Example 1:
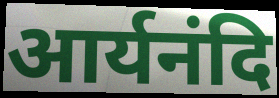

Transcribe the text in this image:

आर्यनंदि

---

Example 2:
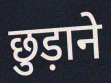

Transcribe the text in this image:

छुड़ाने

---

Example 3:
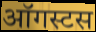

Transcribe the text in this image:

ऑगस्टस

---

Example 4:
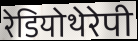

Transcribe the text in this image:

रेडियोथेरेपी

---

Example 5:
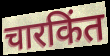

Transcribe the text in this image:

चारकिंत